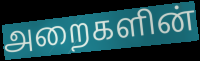
அறைகளின்